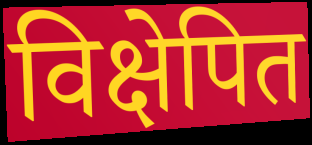
विक्षेपित